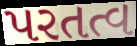
પરતત્વ